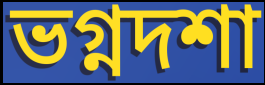
ভগ্নদশা